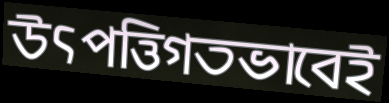
উৎপত্তিগতভাবেই